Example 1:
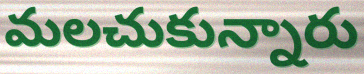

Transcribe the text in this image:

మలచుకున్నారు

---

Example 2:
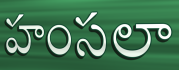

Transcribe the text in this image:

హంసలా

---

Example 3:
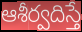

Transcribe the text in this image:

ఆశీర్వదిస్తే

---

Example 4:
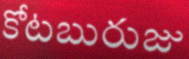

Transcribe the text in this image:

కోటబురుజు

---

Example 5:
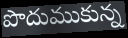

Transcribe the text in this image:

పొదుముకున్న